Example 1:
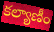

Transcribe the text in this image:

కల్యాణీం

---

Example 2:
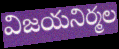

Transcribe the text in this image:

విజయనిర్మల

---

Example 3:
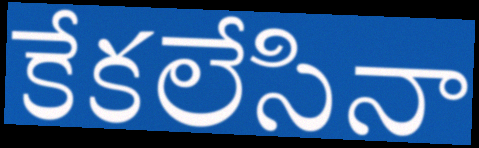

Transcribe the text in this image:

కేకలేసినా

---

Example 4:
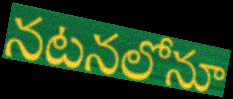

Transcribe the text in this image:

నటనలోనూ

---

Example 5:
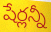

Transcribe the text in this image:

షేర్లన్నీ